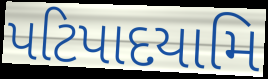
પટિપાદયામિ